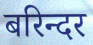
बरिन्दर